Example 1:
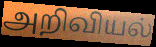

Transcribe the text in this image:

அறிவியல்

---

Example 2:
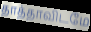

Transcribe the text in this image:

தாத்தாவிடமே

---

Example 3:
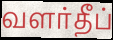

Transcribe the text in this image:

வளர்தீப்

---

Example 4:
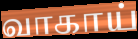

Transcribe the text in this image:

வாகாய்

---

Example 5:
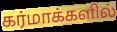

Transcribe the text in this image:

கர்மாக்களில்